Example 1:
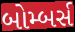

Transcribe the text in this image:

બોમ્બર્સ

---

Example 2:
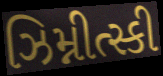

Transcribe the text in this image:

ઝિમ્નીત્સ્કી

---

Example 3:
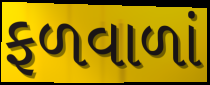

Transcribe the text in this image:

ફળવાળાં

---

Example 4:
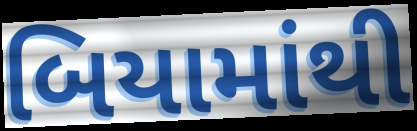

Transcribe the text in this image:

બિયામાંથી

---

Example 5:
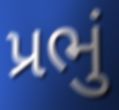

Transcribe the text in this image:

પ્રભું